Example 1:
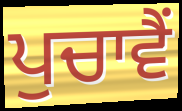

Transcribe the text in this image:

ਪੁਚਾਵੈਂ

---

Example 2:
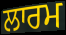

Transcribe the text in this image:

ਲਾਰਮ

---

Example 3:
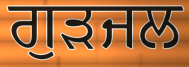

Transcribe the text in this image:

ਗੁੜਜਲ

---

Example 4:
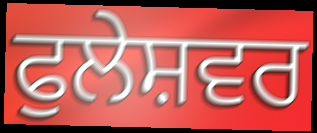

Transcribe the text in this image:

ਫੁਲੇਸ਼ਵਰ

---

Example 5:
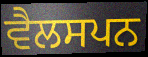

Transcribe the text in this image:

ਵੈਲਸਪਨ